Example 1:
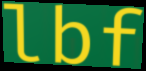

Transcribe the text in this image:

lbf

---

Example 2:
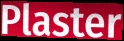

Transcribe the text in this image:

Plaster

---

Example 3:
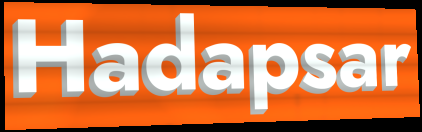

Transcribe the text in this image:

Hadapsar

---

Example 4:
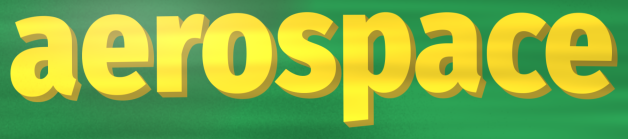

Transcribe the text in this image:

aerospace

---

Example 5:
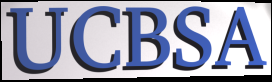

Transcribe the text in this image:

UCBSA